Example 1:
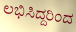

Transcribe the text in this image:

ಲಭಿಸಿದ್ದರಿಂದ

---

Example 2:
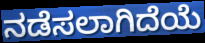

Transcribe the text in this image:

ನಡೆಸಲಾಗಿದೆಯೆ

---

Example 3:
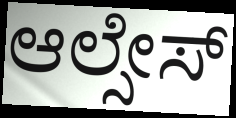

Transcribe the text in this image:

ಆಲ್ಸೇಸ್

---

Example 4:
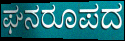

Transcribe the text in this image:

ಘನರೂಪದ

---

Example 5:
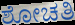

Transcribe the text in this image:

ಶೋಚತಿ